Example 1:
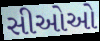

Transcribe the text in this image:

સીઓઓ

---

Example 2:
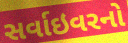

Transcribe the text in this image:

સર્વાઇવરનો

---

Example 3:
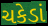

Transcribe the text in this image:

ચકેડાં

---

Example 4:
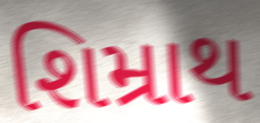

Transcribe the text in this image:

શિમ્રાથ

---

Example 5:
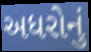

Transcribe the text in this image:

અધરોનું